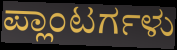
ಪ್ಲಾಂಟರ್ಗಳು